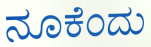
ನೂಕೆಂದು